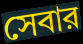
সেবার